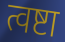
त्वष्टा